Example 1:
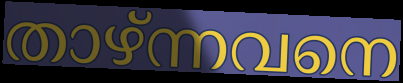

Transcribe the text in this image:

താഴ്ന്നവനെ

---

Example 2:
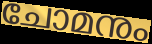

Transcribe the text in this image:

ചോമനും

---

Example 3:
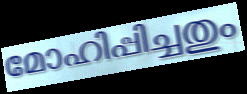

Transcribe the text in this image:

മോഹിപ്പിച്ചതും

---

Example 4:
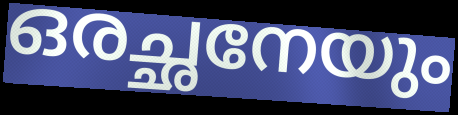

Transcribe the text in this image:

ഒരച്ഛനേയും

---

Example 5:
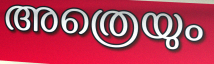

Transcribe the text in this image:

അത്രെയും